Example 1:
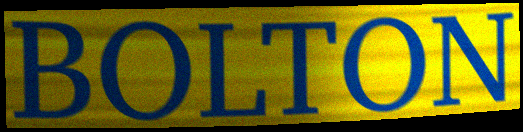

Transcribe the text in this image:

BOLTON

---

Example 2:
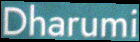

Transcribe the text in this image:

Dharumi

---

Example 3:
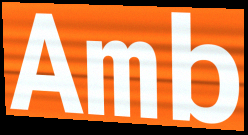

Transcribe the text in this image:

Amb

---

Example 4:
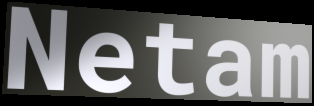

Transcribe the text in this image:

Netam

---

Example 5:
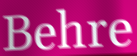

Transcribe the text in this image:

Behre